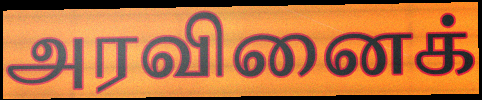
அரவினைக்